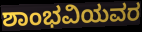
ಶಾಂಭವಿಯವರ